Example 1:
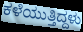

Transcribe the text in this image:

ಕಳೆಯುತ್ತಿದ್ದಳು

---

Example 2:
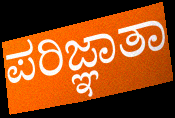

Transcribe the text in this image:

ಪರಿಜ್ಞಾತಾ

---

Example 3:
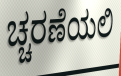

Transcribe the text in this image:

ಚ್ಚರಣೆಯಲಿ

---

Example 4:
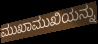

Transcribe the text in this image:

ಮುಖಾಮುಖಿಯನ್ನು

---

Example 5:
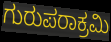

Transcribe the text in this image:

ಗುರುಪರಾಕ್ರಮಿ